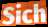
Sich